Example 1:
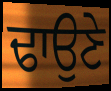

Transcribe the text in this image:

ਢਾਉਣੇ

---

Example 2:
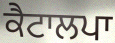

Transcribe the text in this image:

ਕੈਟਾਲਪਾ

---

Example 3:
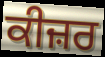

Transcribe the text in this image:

ਕੀਜ਼ਰ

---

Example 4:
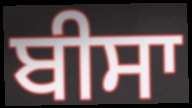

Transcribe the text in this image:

ਬੀਸਾ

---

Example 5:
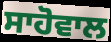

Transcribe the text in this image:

ਸਾਹੋਵਾਲ